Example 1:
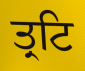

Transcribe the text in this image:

ਤ੍ਰਟਿ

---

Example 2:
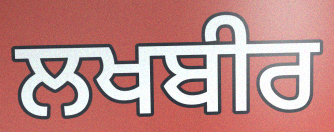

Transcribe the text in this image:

ਲਖਬੀਰ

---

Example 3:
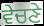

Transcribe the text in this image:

ਵੇਚਣੇ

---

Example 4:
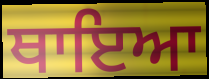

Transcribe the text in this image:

ਥਾਇਆ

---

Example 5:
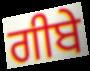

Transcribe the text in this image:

ਗੀਬੇ